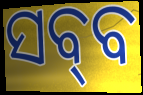
ସବ୍‌ବ